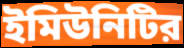
ইমিউনিটির